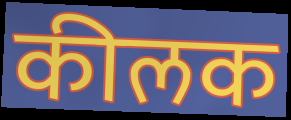
कीलक